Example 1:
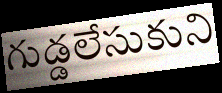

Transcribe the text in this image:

గుడ్డలేసుకుని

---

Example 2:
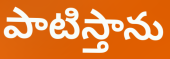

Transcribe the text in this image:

పాటిస్తాను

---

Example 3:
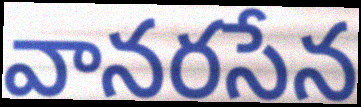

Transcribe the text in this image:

వానరసేన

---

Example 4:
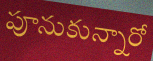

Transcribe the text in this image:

పూనుకున్నారో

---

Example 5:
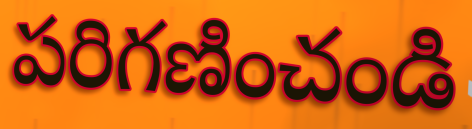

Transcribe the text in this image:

పరిగణించండి